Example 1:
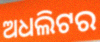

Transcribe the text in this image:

ଅଧଲିଟର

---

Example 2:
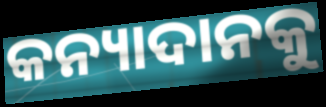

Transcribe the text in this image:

କନ୍ୟାଦାନକୁ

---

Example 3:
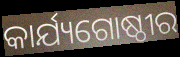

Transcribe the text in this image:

କାର୍ଯ୍ୟଗୋଷ୍ଠୀର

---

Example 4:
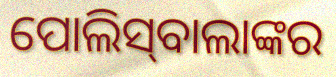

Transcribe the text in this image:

ପୋଲିସ୍‌ବାଲାଙ୍କର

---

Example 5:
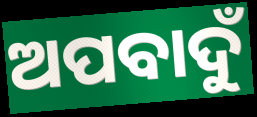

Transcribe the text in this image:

ଅପବାଦୁଁ